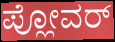
ಪ್ಲೋವರ್